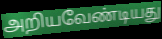
அறியவேண்டியது